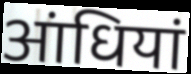
आंधियां